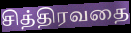
சித்திரவதை